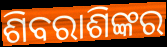
ଶିବରାଶିଙ୍କର